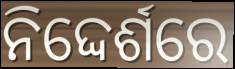
ନିଦ୍ଦେର୍ଶରେ